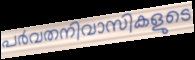
പർവതനിവാസികളുടെ